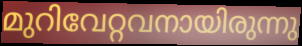
മുറിവേറ്റവനായിരുന്നു